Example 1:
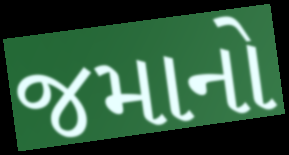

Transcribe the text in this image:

જમાનો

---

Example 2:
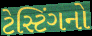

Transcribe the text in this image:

ટેસ્ટિંગનો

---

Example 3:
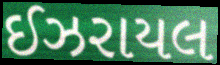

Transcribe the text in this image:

ઈઝરાયલ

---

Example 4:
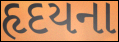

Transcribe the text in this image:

હૃદયના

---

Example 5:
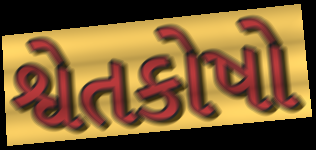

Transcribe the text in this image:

શ્વેતકોષો